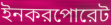
ইনকরপোরেট